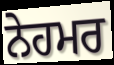
ਨੇਹਮਰ